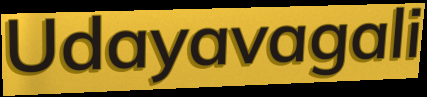
Udayavagali